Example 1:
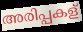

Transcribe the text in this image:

അരിപ്പകള്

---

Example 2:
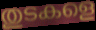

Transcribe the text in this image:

തുടകളെ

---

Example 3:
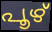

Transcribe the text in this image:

പൂഴ്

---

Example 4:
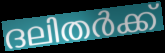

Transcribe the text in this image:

ദലിതർക്ക്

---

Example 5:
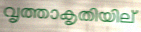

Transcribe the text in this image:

വൃത്താകൃതിയില്